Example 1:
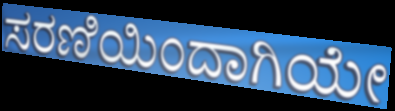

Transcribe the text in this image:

ಸರಣಿಯಿಂದಾಗಿಯೇ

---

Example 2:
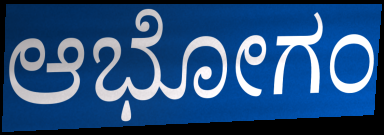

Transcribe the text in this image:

ಆಭೋಗಂ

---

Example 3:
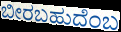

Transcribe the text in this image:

ಬೀರಬಹುದೆಂಬ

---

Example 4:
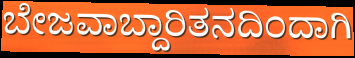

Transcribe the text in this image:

ಬೇಜವಾಬ್ದಾರಿತನದಿಂದಾಗಿ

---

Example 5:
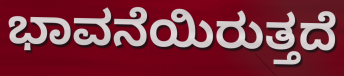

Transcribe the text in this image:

ಭಾವನೆಯಿರುತ್ತದೆ